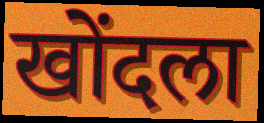
खोंदला